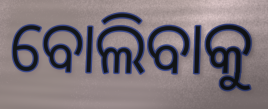
ବୋଲିବାକୁ